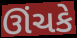
ઊંચકે